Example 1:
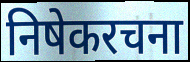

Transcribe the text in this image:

निषेकरचना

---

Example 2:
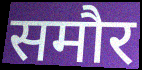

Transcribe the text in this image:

समौर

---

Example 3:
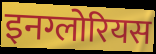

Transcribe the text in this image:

इनग्लोरियस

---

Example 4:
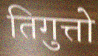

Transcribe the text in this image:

तिगुत्तो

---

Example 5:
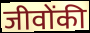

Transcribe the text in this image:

जीवोंकी